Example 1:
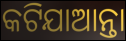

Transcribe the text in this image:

କଟିଯାଆନ୍ତା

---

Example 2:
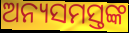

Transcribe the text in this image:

ଅନ୍ୟସମସ୍ତଙ୍କ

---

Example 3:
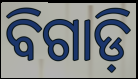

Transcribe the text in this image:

ବିଗାଡ଼ି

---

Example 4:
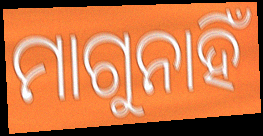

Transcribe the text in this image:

ମାଗୁନାହିଁ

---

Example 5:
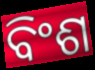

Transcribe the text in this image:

ବିଂଶ